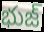
భుజ్